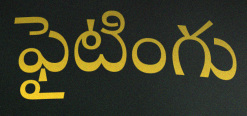
ఫైటింగు